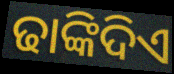
ଢାଙ୍କିଦିଏ